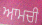
ਆਮਚੀ